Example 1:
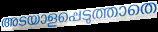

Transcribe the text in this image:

അടയാളപ്പെടുത്താതെ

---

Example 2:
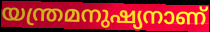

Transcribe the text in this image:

യന്ത്രമനുഷ്യനാണ്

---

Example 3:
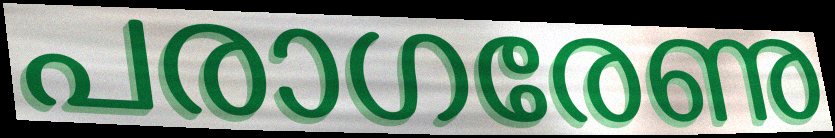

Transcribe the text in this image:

പരാഗരേണു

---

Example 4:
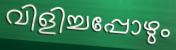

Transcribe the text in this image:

വിളിച്ചപ്പോഴും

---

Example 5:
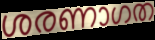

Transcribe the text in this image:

ശരണാഗത